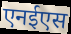
एनईएस